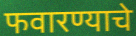
फवारण्याचे